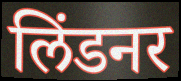
लिंडनर